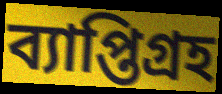
ব্যাপ্তিগ্রহ